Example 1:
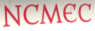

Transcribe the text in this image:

NCMEC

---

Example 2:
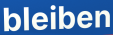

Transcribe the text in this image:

bleiben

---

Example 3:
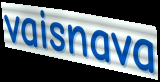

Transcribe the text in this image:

vaisnava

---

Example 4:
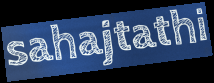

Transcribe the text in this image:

sahajtathi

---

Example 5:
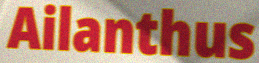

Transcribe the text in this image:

Ailanthus